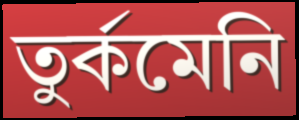
তুর্কমেনি